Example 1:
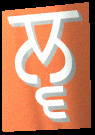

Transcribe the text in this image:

ਲ੍ਵ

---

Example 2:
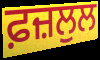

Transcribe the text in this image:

ਫ਼ਜ਼ਲੁਲ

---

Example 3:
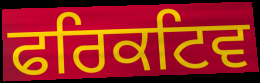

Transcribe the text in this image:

ਫਰਿਕਟਿਵ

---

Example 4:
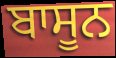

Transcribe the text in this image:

ਬਾਸੂਨ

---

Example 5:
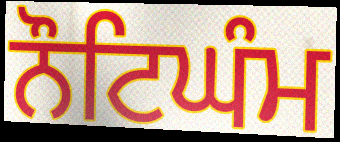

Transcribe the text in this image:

ਨੌਟਿਘੰਮ